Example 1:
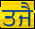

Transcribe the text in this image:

ਤਜੈ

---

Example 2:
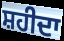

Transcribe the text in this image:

ਸ਼ਹੀਦਾ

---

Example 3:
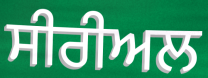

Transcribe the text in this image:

ਸੀਰੀਅਲ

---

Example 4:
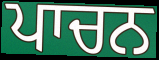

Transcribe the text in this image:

ਪਾਚਨ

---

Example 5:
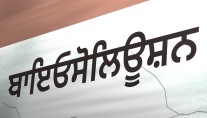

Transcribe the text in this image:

ਬਾਇਓਸੋਲਿਊਸ਼ਨ